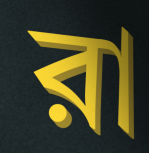
রা